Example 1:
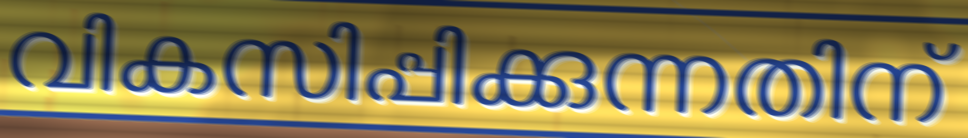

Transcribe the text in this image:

വികസിപ്പിക്കുന്നതിന്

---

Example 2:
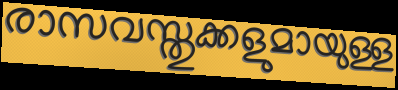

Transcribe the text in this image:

രാസവസ്തുക്കളുമായുള്ള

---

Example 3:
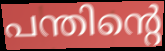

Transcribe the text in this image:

പന്തിന്റെ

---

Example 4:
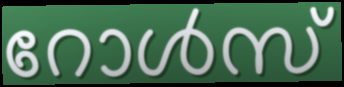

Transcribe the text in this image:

റോൾസ്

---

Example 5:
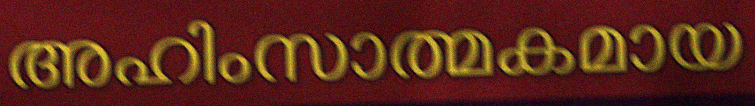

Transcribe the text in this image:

അഹിംസാത്മകമായ